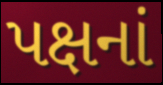
પક્ષનાં